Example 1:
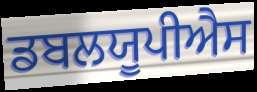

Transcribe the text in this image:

ਡਬਲਯੂਪੀਐਸ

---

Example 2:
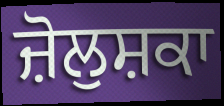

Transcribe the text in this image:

ਜ਼ੋਲੁਸ਼ਕਾ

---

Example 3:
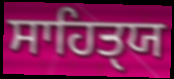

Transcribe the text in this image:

ਸਾਹਿਤੑਯ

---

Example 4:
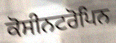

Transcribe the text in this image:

ਕੋਸੀਨਟਰੋਪਿਨ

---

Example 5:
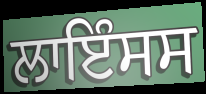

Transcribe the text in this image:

ਲਾਇੰਸਸ